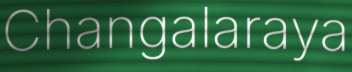
Changalaraya